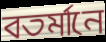
বতর্মানে